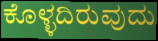
ಕೊಳ್ಳದಿರುವುದು